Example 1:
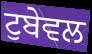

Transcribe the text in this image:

ਟੁਬੇਵਲ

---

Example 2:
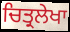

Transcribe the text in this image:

ਚਿਤ੍ਰਲੇਖਾ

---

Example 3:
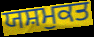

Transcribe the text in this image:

ਯਸ਼ਮੁਕਤ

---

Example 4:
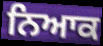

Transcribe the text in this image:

ਨਿਆਕ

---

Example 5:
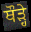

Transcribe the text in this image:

ਥੌੜ੍ਹੇ